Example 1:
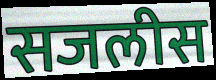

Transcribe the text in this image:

सजलीस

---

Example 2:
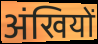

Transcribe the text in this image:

अंखियों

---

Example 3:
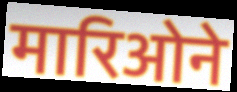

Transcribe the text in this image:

मारिओने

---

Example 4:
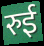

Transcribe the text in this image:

रुई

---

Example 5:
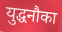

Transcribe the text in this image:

युद्धनौका